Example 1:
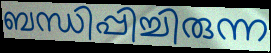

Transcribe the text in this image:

ബന്ധിപ്പിച്ചിരുന്ന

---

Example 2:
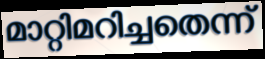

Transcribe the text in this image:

മാറ്റിമറിച്ചതെന്ന്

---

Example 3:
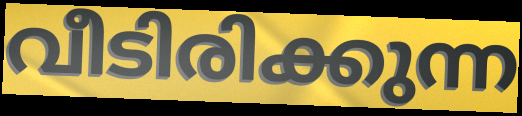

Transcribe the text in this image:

വീടിരിക്കുന്ന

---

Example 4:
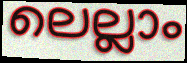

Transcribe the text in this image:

ലെല്ലാം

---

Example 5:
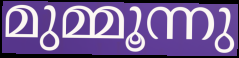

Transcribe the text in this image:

മുമ്മൂന്നു